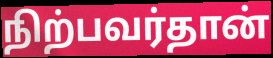
நிற்பவர்தான்